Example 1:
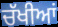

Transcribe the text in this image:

ਚੱਖੀਆਂ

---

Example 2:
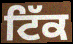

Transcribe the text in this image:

ਟਿੱਕ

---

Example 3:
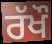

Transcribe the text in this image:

ਰੱਖੌ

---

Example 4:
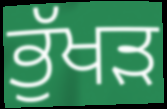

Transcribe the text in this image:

ਭੁੱਖੜ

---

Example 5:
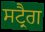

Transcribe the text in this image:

ਸਟ੍ਰੈਗ